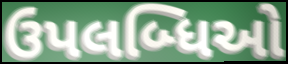
ઉપલબ્ધિઓ